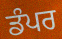
ਡੰਪਰ